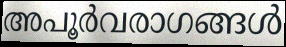
അപൂർവരാഗങ്ങൾ